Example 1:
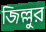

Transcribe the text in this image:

জিল্লুর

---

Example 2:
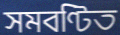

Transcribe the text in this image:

সমবণ্টিত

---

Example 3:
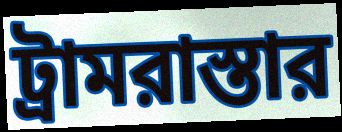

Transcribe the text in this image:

ট্রামরাস্তার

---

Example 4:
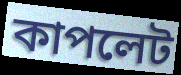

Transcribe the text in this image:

কাপলেট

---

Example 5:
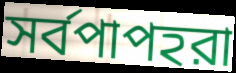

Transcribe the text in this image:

সর্বপাপহরা